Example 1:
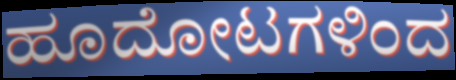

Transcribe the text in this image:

ಹೂದೋಟಗಳಿಂದ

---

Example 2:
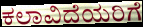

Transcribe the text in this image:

ಕಲಾವಿದೆಯರಿಗೆ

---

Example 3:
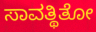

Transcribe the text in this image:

ಸಾವತ್ಥಿತೋ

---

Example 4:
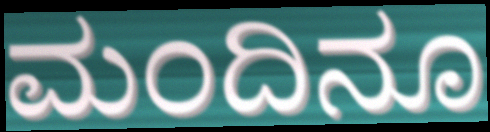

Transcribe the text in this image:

ಮಂದಿನೂ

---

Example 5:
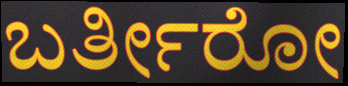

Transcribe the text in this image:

ಬರ್ತೀರೋ